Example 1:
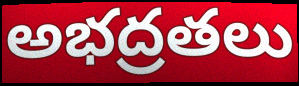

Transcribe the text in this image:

అభద్రతలు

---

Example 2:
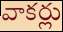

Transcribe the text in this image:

వాకర్లు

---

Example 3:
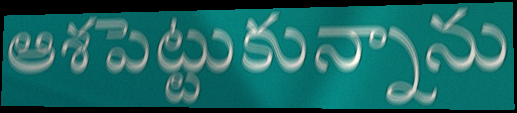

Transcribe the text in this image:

ఆశపెట్టుకున్నాను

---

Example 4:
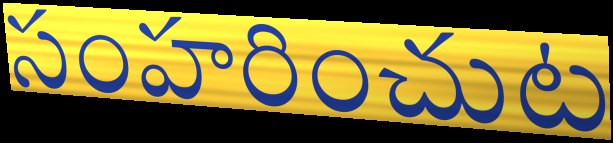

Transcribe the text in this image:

సంహరించుట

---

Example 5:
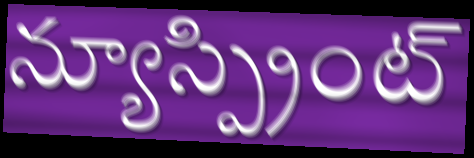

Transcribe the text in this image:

న్యూస్ప్రింట్